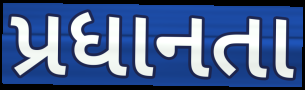
પ્રધાનતા